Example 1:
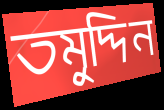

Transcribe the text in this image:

তমুদ্দিন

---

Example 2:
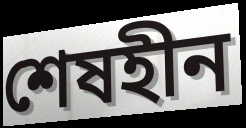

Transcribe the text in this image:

শেষহীন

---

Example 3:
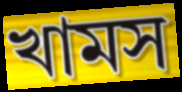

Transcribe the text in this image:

খামস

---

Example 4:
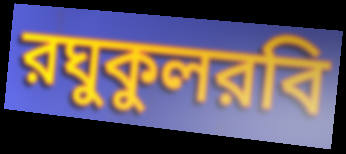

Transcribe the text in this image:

রঘুকুলরবি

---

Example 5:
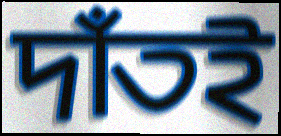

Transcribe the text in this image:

দাঁতই